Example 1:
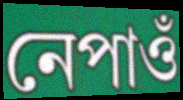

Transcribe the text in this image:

নেপাওঁ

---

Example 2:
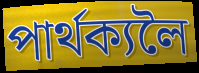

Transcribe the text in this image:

পাৰ্থক্যলৈ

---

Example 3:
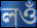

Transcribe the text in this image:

লওঁ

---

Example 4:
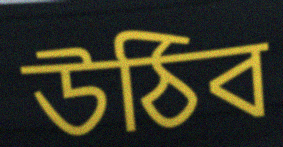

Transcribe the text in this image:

উঠিব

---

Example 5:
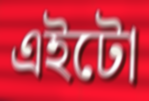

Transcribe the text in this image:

এইটো